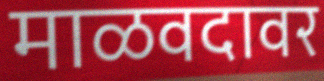
माळवदावर